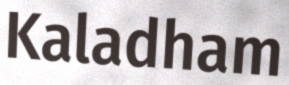
Kaladham